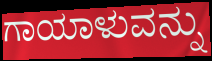
ಗಾಯಾಳುವನ್ನು